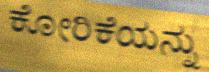
ಕೋರಿಕೆಯನ್ನು